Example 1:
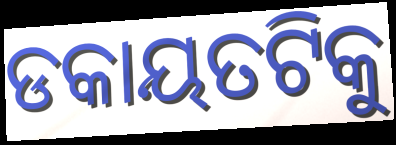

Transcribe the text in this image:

ଡକାୟତଟିକୁ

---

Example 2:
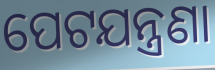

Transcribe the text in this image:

ପେଟଯନ୍ତ୍ରଣା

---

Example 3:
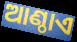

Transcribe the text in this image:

ଆଣ୍ଠାଏ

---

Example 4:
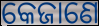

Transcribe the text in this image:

କେଜାଣେ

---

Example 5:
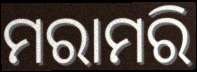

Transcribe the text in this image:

ମରାମରି